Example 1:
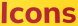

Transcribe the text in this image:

Icons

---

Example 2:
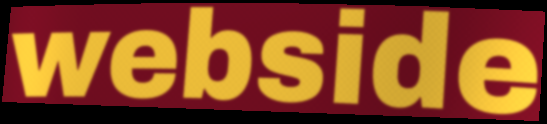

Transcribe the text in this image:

webside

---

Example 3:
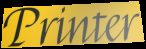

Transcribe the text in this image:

Printer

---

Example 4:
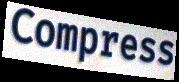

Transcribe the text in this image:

Compress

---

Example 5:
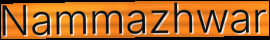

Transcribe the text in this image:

Nammazhwar